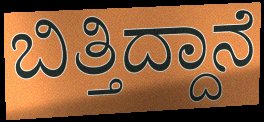
ಬಿತ್ತಿದ್ದಾನೆ